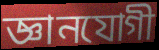
জ্ঞানযোগী